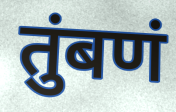
तुंबणं